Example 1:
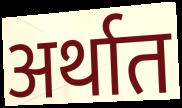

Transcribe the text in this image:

अर्थात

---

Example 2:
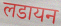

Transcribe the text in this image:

लडायन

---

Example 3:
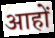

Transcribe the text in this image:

आहों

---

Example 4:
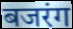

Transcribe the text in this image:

बजरंग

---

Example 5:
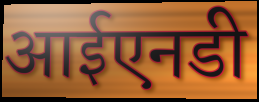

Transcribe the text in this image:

आईएनडी